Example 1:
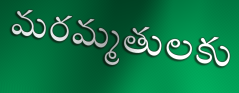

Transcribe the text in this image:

మరమ్మతులకు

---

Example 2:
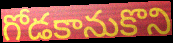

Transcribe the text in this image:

గోడకానుకొని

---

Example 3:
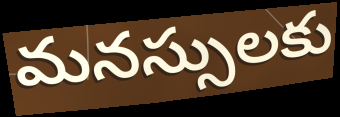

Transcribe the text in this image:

మనస్సులకు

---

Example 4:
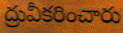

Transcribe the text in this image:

ద్రువీకరించారు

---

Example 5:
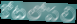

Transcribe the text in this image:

కోటలోపలి